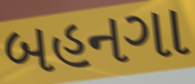
બહનગા